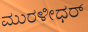
ಮುರಳೀಧರ್